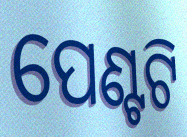
ପେଣ୍ଟଟି